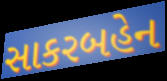
સાકરબહેન